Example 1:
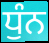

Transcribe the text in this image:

ਧੁੰਨ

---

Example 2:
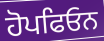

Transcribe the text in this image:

ਹੋਪਫਿਓਨ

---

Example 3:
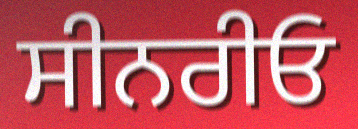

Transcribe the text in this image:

ਸੀਨਰੀਓ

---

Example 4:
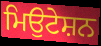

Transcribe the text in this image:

ਮਿਉਟੇਸ਼ਨ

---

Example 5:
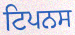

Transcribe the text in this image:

ਟਿਪਨਸ